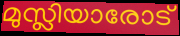
മുസ്ലിയാരോട്